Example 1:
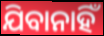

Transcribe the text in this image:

ଯିବାନାହିଁ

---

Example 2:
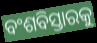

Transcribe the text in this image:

ବଂଶବିସ୍ତାରକୁ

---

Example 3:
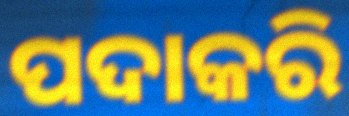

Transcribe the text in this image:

ପଦାକରି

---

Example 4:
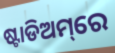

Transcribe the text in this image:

ଷ୍ଟାଡିଅମ୍‌ରେ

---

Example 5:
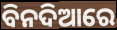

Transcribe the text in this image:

ବିନଦିଆରେ